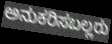
ಅನುಕರಿಸಬಲ್ಲರು